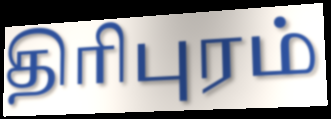
திரிபுரம்